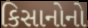
કિસાનોનો